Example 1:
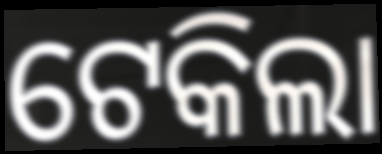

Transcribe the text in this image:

ଟେକିଲା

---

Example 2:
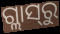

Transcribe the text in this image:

ଗ୍ଲାସ୍‍ରୁ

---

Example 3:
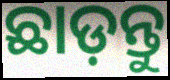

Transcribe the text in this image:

ଛାଡ଼ନ୍ତୁ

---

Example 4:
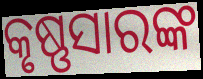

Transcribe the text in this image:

କୃଷ୍ଣସାରଙ୍କ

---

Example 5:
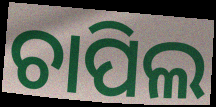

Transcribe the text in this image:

ଚାପିଲ